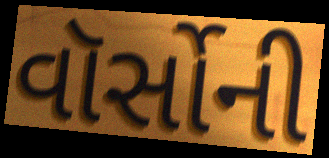
વૉર્સોની